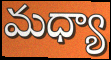
మధ్యా